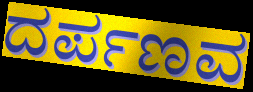
ದರ್ಪಣವ